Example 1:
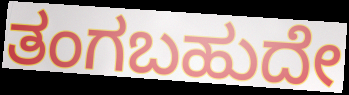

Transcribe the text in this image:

ತಂಗಬಹುದೇ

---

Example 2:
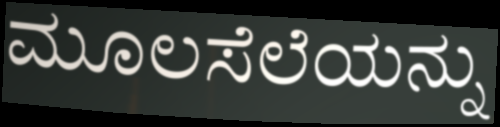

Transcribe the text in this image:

ಮೂಲಸೆಲೆಯನ್ನು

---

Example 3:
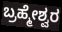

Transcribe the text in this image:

ಬ್ರಹ್ಮೇಶ್ವರ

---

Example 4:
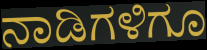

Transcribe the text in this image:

ನಾಡಿಗಳಿಗೂ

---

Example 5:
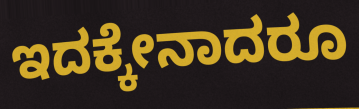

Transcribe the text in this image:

ಇದಕ್ಕೇನಾದರೂ